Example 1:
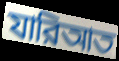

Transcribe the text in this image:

যারিআত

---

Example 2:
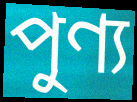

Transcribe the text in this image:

পুণ্য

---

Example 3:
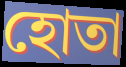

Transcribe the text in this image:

হোতা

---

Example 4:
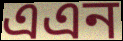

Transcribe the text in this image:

এএন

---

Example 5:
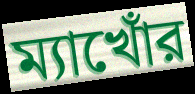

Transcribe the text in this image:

ম্যাখোঁর